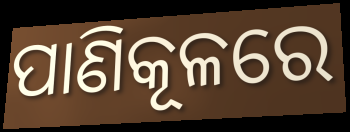
ପାଣିକୂଳରେ